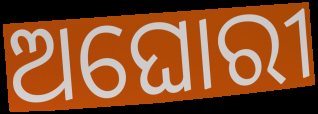
ଅଘୋରୀ